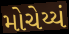
મોચેય્યં